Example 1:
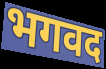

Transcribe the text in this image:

भगवद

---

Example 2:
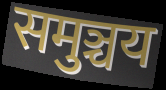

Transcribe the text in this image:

समुञ्चय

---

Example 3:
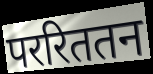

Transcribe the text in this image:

पररिततन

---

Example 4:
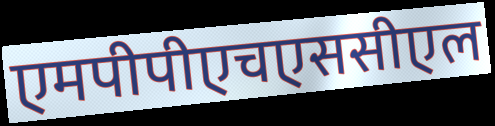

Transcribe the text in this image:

एमपीपीएचएससीएल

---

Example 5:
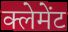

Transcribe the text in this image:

क्लेमेंट